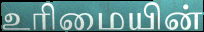
உரிமையின்